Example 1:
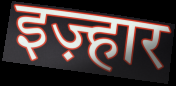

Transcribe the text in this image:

इज़्हार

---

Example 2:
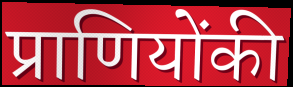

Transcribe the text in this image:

प्राणियोंकी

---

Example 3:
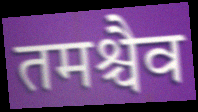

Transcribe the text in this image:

तमश्चैव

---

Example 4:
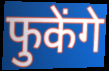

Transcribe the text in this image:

फुकेंगे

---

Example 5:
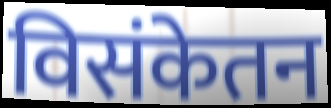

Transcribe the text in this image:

विसंकेतन